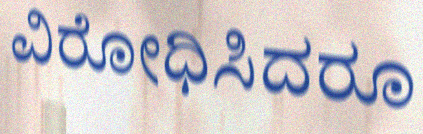
ವಿರೋಧಿಸಿದರೂ